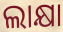
ଲାକ୍ଷା